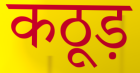
कठूड़